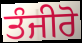
ਤੰਜੀਰੋ